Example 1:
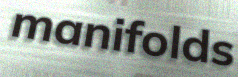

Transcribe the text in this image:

manifolds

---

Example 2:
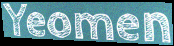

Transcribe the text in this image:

Yeomen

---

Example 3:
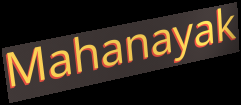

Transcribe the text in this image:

Mahanayak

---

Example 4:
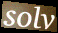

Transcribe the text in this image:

solv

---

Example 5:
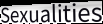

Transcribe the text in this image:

Sexualities